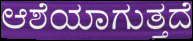
ಆಶೆಯಾಗುತ್ತದೆ